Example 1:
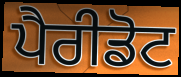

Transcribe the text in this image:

ਪੈਰੀਡੋਟ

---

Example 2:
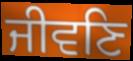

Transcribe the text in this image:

ਜੀਵਣਿ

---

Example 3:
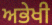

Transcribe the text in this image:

ਅਭੇਖੀ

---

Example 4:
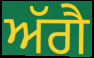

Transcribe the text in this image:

ਅੱਗੈ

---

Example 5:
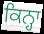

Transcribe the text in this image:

ਕਿਨ੍ਹਾ